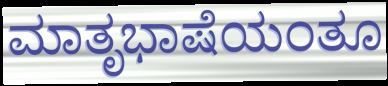
ಮಾತೃಭಾಷೆಯಂತೂ